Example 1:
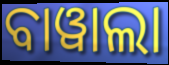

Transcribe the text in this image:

ବାୱାଲା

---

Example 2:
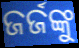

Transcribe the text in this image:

ଜର୍ଜଙ୍କୁ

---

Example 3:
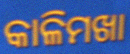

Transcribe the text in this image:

କାଳିମଖା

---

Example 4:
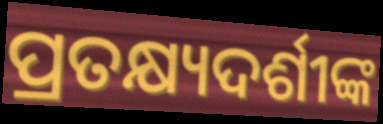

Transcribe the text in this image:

ପ୍ରତକ୍ଷ୍ୟଦର୍ଶୀଙ୍କ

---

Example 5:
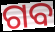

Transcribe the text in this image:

ଗବ